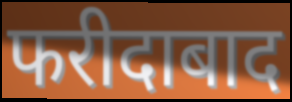
फरीदाबाद